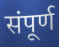
संपूर्ण